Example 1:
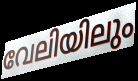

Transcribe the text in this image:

വേലിയിലും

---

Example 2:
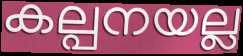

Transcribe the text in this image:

കല്പനയല്ല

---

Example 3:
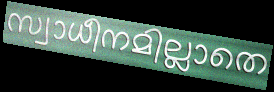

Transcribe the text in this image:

സ്വാധീനമില്ലാതെ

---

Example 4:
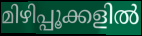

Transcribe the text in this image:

മിഴിപ്പൂക്കളിൽ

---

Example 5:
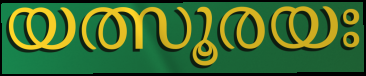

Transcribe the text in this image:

യത്സൂരയഃ